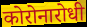
कोरोनारोधी